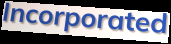
Incorporated